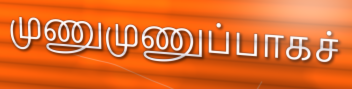
முணுமுணுப்பாகச்